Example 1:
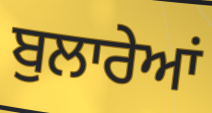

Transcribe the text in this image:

ਬੁਲਾਰੇਆਂ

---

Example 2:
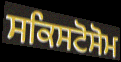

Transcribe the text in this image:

ਸਕਿਸਟੋਸੋਮ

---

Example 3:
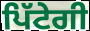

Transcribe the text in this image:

ਪਿੱਟੇਗੀ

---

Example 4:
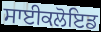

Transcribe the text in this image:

ਸਾਈਕਲੋਇਡ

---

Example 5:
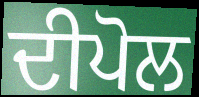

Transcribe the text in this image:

ਦੀਪੋਲ